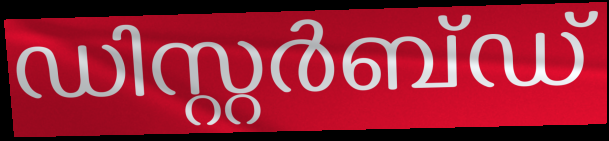
ഡിസ്റ്റർബ്ഡ്